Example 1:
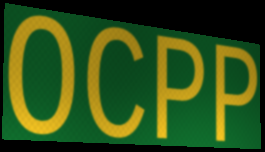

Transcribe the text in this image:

OCPP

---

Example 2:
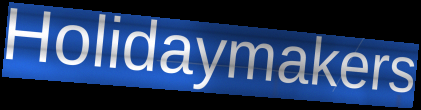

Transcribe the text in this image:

Holidaymakers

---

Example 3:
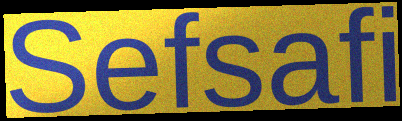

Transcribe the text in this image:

Sefsafi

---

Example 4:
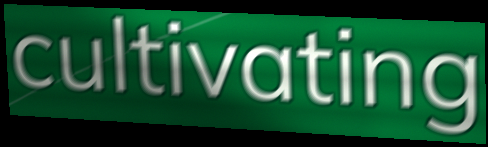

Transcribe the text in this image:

cultivating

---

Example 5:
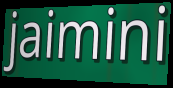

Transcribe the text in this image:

jaimini